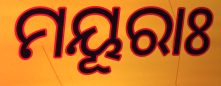
ମୟୂରାଃ